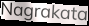
Nagrakata